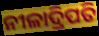
ନୀଳାଦ୍ରିପତି